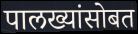
पालख्यांसोबत